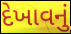
દેખાવનું